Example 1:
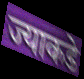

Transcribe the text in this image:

ज्याकडे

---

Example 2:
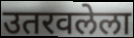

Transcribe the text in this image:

उतरवलेला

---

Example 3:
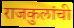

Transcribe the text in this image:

राजकुलांची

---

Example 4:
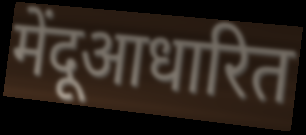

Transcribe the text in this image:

मेंदूआधारित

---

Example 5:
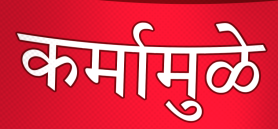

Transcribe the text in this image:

कर्मामुळे